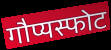
गौप्यस्फोट